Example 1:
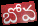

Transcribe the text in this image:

బోవ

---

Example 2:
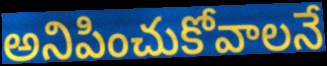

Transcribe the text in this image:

అనిపించుకోవాలనే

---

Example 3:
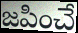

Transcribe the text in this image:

జపించే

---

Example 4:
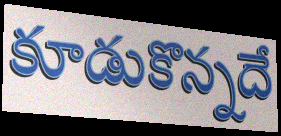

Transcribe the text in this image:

కూడుకొన్నదే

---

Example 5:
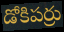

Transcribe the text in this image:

డోకిపర్రు